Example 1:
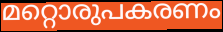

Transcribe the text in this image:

മറ്റൊരുപകരണം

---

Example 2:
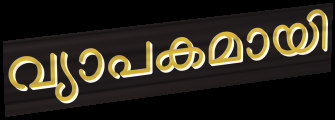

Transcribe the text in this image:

വ്യാപകമായി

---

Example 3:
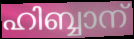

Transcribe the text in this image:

ഹിബ്ബാന്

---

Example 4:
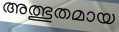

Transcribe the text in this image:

അത്ഭുതമായ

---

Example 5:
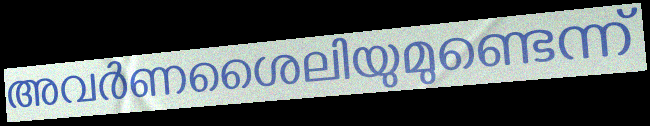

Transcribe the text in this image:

അവർണശൈലിയുമുണ്ടെന്ന്